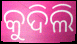
କୁଦିଲି